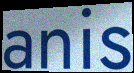
anis